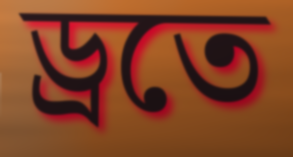
ড্রতে